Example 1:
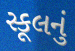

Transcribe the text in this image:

સ્કૂલનું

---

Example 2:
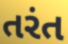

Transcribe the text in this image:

તરંત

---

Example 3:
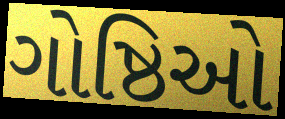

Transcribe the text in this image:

ગોષ્ઠિઓ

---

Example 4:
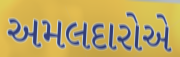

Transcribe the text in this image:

અમલદારોએ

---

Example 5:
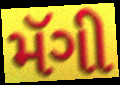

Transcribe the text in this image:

મૅગી